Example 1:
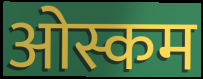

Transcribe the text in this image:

ओस्कम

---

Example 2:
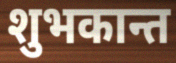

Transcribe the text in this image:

शुभकान्त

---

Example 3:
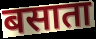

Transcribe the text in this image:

बसाता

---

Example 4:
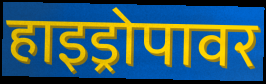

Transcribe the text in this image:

हाइड्रोपावर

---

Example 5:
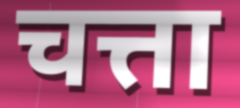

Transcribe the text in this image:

चत्ता